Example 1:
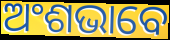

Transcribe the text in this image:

ଅଂଶଭାବେ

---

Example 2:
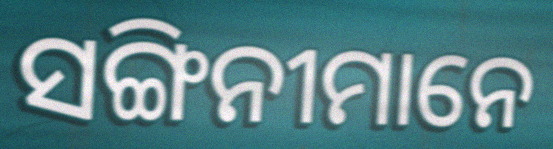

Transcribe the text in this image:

ସଙ୍ଗିନୀମାନେ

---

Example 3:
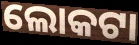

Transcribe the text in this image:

ଲୋକଟା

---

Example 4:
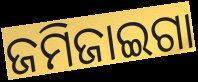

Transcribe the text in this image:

ଜମିଜାଇଗା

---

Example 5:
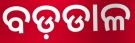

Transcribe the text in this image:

ବଡ଼ଡାଳ